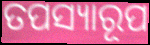
ତପସ୍ୟାରୂପ